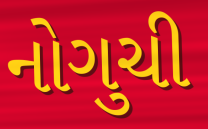
નોગુચી